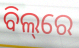
ବିଲ୍‌ରେ